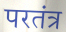
परतंत्र